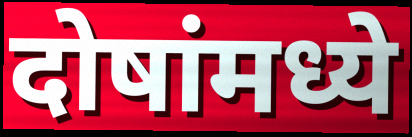
दोषांमध्ये